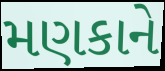
મણકાને